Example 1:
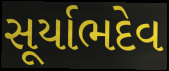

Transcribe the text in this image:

સૂર્યાભદેવ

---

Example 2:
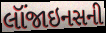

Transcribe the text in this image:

લૉંજાઇનસની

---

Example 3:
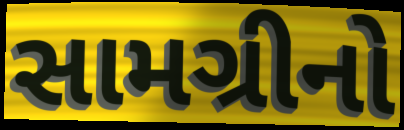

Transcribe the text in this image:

સામગ્રીનો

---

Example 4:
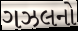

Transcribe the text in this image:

ગઝલનો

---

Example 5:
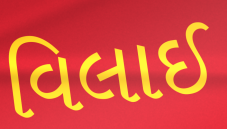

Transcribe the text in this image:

વિલાઈ